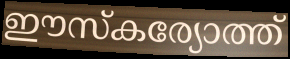
ഈസ്കര്യോത്ത്